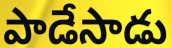
పాడేసాడు